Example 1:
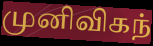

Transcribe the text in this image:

முனிவிகந்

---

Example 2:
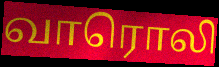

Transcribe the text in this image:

வாரொலி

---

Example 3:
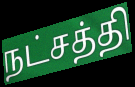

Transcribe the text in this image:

நட்சத்தி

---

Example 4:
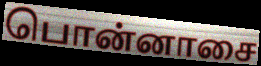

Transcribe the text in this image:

பொன்னாசை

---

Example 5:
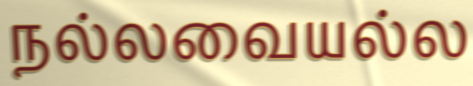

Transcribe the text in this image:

நல்லவையல்ல